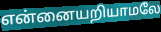
என்னையறியாமலே